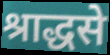
श्राद्धसे